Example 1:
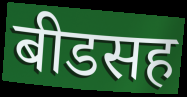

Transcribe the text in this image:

बीडसह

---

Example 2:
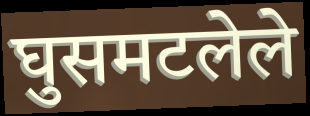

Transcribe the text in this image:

घुसमटलेले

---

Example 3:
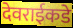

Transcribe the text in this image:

देवराईकडे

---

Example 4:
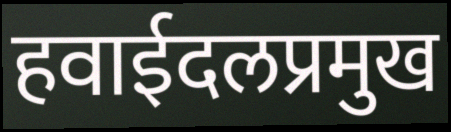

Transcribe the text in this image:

हवाईदलप्रमुख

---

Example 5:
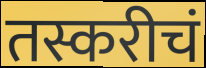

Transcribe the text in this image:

तस्करीचं